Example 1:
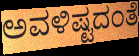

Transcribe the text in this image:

ಅವಳಿಷ್ಟದಂತೆ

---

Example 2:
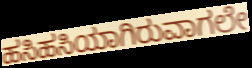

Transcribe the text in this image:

ಹಸಿಹಸಿಯಾಗಿರುವಾಗಲೇ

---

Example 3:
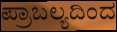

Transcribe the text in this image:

ಪ್ರಾಬಲ್ಯದಿಂದ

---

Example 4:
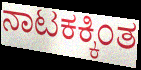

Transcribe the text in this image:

ನಾಟಕಕ್ಕಿಂತ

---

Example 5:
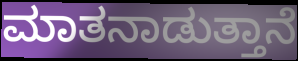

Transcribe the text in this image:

ಮಾತನಾಡುತ್ತಾನೆ